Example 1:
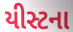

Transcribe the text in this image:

યીસ્ટના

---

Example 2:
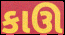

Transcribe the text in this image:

કાઊ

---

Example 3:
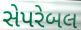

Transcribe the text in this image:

સેપરેબલ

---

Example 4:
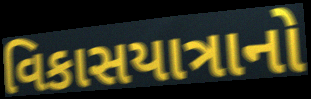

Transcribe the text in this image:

વિકાસયાત્રાનો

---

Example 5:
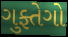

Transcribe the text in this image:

ગુફ્તેગો